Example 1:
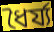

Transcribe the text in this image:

ধৈর্য্য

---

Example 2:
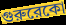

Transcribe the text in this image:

গুরুরেকো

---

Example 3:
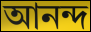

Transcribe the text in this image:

আনন্দ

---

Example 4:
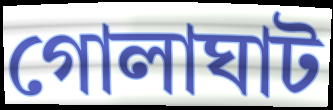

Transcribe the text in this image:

গোলাঘাট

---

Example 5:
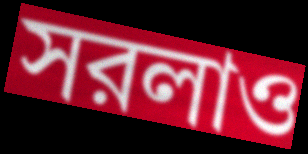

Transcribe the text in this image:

সরলাও